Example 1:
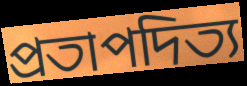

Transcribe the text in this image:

প্ৰতাপদিত্য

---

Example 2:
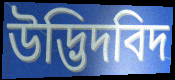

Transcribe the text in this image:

উদ্ভিদবিদ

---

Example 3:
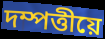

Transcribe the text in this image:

দম্পত্তীয়ে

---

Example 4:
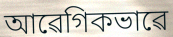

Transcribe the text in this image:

আৱেগিকভাৱে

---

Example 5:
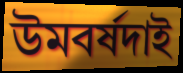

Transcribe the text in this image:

উমবৰ্ষদাই